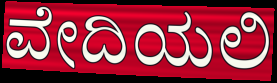
ವೇದಿಯಲಿ